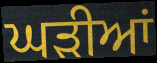
ਘੜੀਆਂ